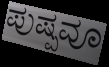
ಪುಷ್ಪವೂ